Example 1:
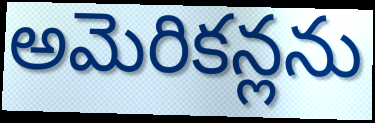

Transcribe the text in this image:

అమెరికన్లను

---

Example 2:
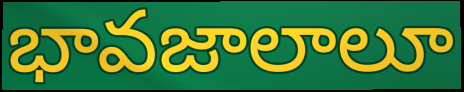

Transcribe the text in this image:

భావజాలాలూ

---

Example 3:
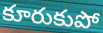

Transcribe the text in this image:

కూరుకుపో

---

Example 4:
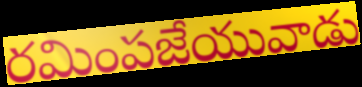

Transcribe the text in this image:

రమింపజేయువాడు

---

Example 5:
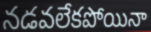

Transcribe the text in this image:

నడవలేకపోయినా